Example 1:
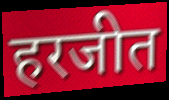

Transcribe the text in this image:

हरजीत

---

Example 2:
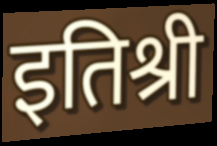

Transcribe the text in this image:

इतिश्री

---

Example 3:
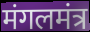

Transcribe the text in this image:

मंगलमंत्र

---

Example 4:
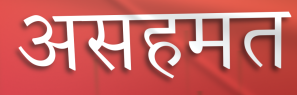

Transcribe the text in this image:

असहमत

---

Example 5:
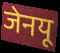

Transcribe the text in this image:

जेनयू